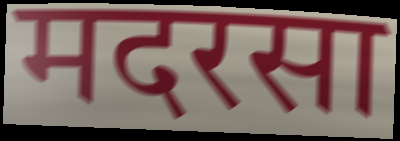
मदरसा